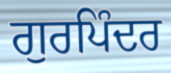
ਗੁਰਪਿੰਦਰ